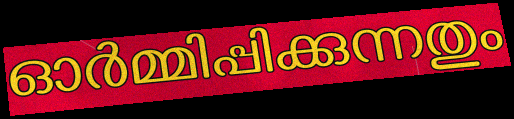
ഓർമ്മിപ്പിക്കുന്നതും